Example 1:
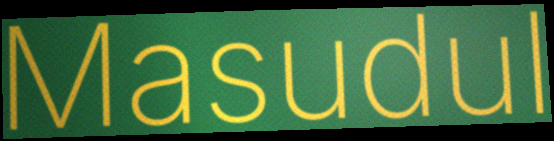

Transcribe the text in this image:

Masudul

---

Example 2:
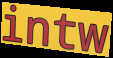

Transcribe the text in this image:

intw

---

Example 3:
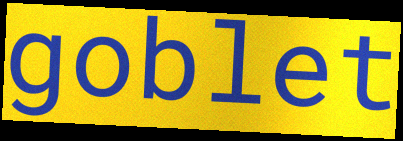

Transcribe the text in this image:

goblet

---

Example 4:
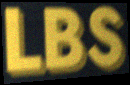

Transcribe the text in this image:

LBS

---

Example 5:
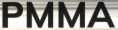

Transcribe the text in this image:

PMMA